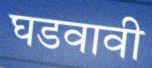
घडवावी